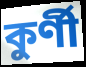
কুর্ণী